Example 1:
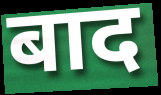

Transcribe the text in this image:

बाद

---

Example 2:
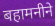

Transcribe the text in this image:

बहामनीने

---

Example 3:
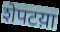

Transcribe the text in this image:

शेपटय़ा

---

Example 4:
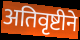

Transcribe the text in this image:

अतिवृष्टीने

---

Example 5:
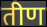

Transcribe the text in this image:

तीण